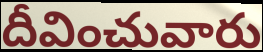
దీవించువారు